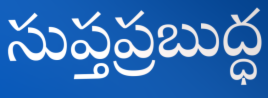
సుప్తప్రబుద్ధ